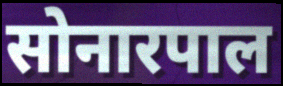
सोनारपाल